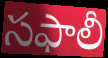
సఫాలీ